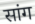
सांग